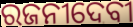
ରଜନୀଦେବୀ